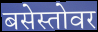
बसेस्तोवर